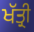
ਖੱਤ੍ਰੀ